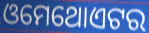
ଓମେଥୋଏଟର